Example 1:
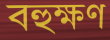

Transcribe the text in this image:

বহুক্ষণ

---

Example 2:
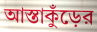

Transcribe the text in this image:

আস্তাকুঁড়ের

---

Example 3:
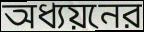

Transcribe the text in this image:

অধ্যয়নের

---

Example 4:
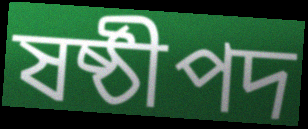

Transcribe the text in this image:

ষষ্ঠীপদ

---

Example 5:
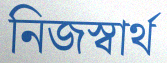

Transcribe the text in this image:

নিজস্বার্থ